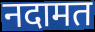
नदामत